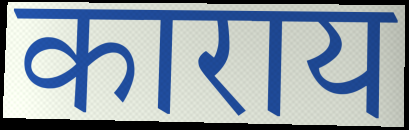
काराय